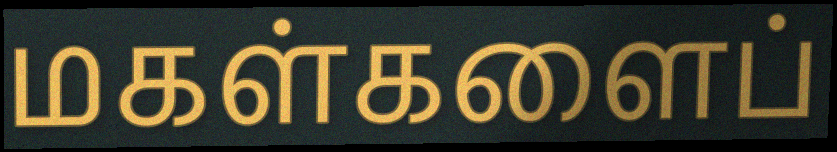
மகள்களைப்